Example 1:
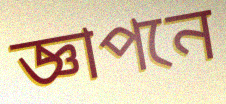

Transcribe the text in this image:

জ্ঞাপনে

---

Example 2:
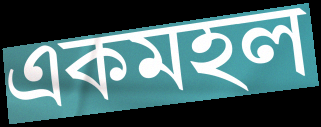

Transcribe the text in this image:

একমহল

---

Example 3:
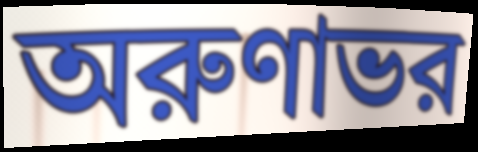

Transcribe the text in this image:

অরুণাভর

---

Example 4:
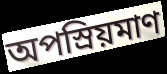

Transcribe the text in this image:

অপস্রিয়মাণ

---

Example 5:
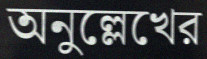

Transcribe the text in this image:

অনুল্লেখের